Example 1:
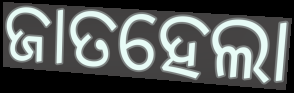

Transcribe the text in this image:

ଜାତହେଲା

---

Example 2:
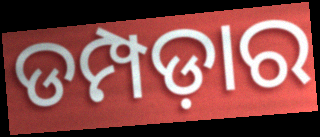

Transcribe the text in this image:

ଡମ୍ପଡ଼ାର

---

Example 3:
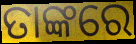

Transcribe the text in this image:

ତାଙ୍କରେ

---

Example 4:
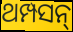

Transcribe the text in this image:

ଥମ୍ପସନ୍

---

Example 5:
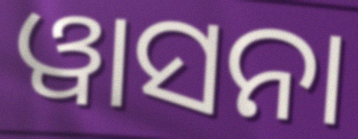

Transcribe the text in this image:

ୱାସନା